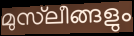
മുസ്‌ലീങ്ങളും